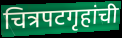
चित्रपटगृहांची